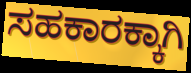
ಸಹಕಾರಕ್ಕಾಗಿ